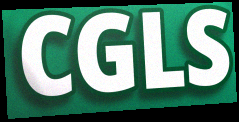
CGLS